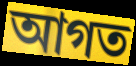
আগত